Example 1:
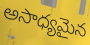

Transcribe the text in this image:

అసాధ్యమైన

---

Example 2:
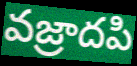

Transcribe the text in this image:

వజ్రాదపి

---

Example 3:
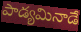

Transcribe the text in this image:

పాడ్యమినాడే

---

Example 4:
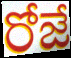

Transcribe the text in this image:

రోజే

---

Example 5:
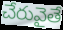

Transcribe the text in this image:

చేరువైతే